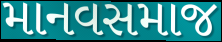
માનવસમાજ